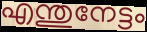
എന്തുനേട്ടം